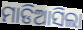
ମାଡିଆସିଲା